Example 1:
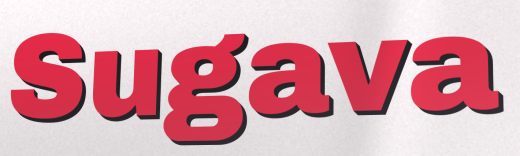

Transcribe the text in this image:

Sugava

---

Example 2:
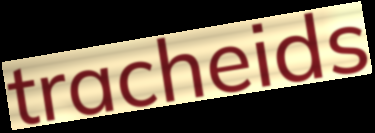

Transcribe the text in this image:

tracheids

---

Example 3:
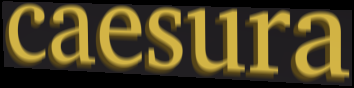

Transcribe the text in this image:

caesura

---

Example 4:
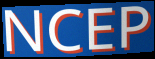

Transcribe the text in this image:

NCEP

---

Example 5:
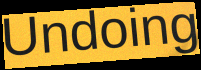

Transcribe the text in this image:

Undoing